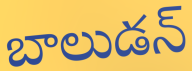
బాలుడన్